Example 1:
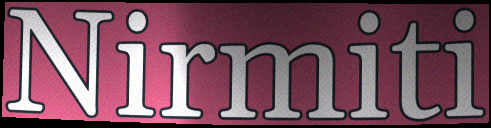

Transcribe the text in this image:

Nirmiti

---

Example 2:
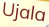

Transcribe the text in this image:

Ujala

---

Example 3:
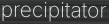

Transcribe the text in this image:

precipitator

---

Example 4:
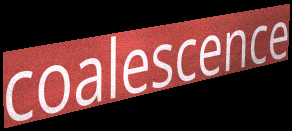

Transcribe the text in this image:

coalescence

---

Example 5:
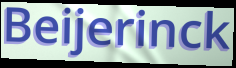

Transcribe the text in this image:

Beijerinck